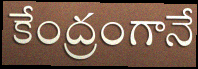
కేంద్రంగానే